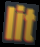
Iit